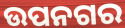
ଉପନଗର